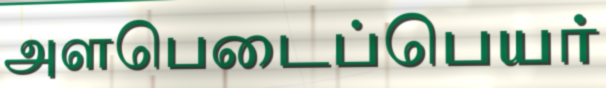
அளபெடைப்பெயர்